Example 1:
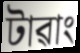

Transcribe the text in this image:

টাৱাং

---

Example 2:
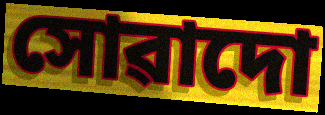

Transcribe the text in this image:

সোৱাদো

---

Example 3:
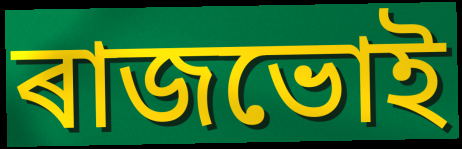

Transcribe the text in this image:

ৰাজভোই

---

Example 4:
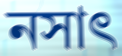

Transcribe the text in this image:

নসাৎ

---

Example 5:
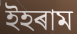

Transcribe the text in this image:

ইহৰাম